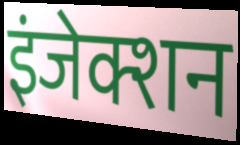
इंजेक्शन